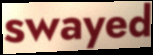
swayed